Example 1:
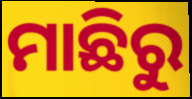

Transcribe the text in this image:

ମାଛିରୁ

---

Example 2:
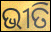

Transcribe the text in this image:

ଭୀତି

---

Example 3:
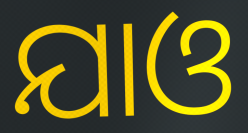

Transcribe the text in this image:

ଯାଓ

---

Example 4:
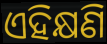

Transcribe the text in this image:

ଏହିକ୍ଷଣି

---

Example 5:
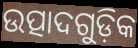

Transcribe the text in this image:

ଉତ୍ପାଦଗୁଡ଼ିକ